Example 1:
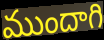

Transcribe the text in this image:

ముందాగి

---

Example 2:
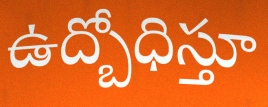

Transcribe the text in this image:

ఉద్బోధిస్తూ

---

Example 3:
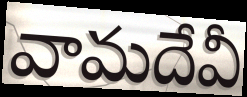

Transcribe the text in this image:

వామదేవీ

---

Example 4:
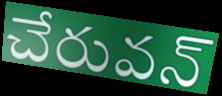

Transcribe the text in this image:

చేరువన్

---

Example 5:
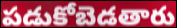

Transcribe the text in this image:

పడుకోబెడతారు